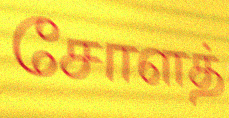
சோளத்